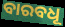
ବାରବଧୂ